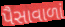
પૈસાવાળાં